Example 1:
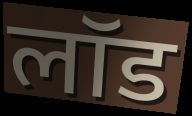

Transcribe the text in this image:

लॉड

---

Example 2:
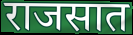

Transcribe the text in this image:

राजसात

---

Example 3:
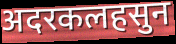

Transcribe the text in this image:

अदरकलहसुन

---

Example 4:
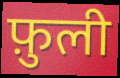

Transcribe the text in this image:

फ़ुली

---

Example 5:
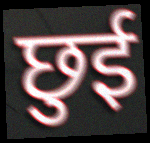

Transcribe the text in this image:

छुई